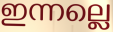
ഇന്നല്ലെ